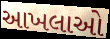
આખલાઓ